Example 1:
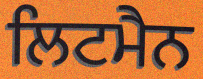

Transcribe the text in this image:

ਲਿਟਮੈਨ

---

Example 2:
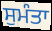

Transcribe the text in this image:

ਸੁਮੰਤਾ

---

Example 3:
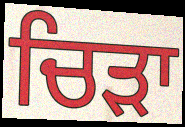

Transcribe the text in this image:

ਚਿੜਾ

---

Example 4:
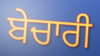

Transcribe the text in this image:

ਬੇਚਾਰੀ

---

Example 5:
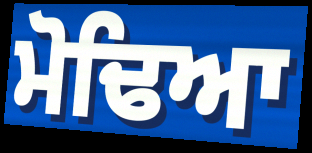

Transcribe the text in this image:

ਮੋਢਿਆ